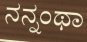
ನನ್ನಂಥಾ